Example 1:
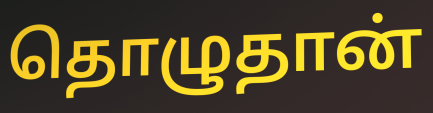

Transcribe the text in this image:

தொழுதான்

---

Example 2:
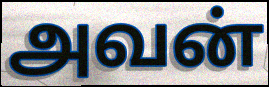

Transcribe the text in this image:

அவன்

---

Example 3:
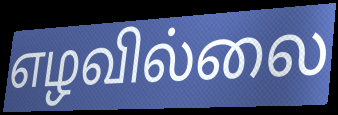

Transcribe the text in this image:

எழவில்லை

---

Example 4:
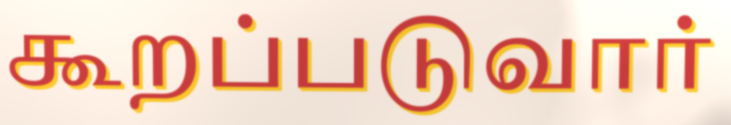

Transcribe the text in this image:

கூறப்படுவார்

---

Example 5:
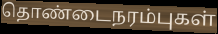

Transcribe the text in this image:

தொண்டைநரம்புகள்